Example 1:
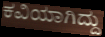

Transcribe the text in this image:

ಕವಿಯಾಗಿದ್ದು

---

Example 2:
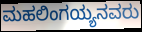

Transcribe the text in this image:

ಮಹಲಿಂಗಯ್ಯನವರು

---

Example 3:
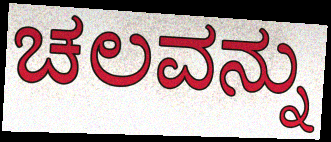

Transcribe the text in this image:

ಚಲವನ್ನು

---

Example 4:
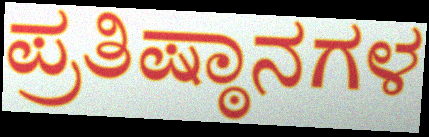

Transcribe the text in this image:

ಪ್ರತಿಷ್ಠಾನಗಳ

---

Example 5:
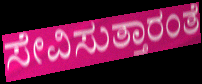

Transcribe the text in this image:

ಸೇವಿಸುತ್ತಾರಂತೆ